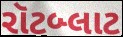
રૉટબ્લાટ